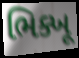
ભિક્ખૂ